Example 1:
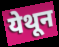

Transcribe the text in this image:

येथून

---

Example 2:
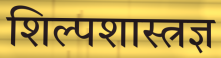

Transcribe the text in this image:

शिल्पशास्त्रज्ञ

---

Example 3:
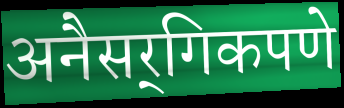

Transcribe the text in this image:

अनैसर्गिकपणे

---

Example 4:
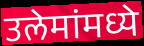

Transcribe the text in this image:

उलेमांमध्ये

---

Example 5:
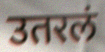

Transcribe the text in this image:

उतरलं